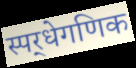
स्पर्धेगणिक